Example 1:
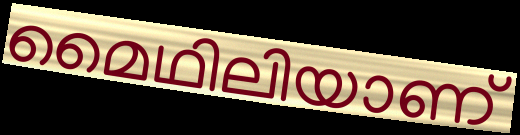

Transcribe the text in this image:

മൈഥിലിയാണ്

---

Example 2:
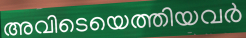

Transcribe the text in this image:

അവിടെയെത്തിയവർ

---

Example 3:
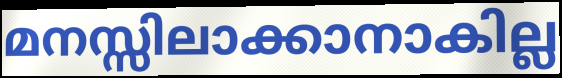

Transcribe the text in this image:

മനസ്സിലാക്കാനാകില്ല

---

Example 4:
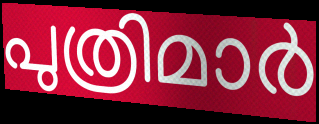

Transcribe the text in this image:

പുത്രിമാർ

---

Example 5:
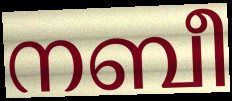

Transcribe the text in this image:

നബീ